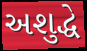
અશુદ્ધે